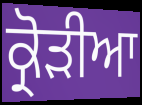
ਕ੍ਰੋੜੀਆ